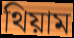
থিয়াম